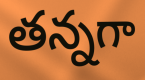
తన్నగా